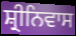
ਸ਼੍ਰੀਨਿਵਾਸ